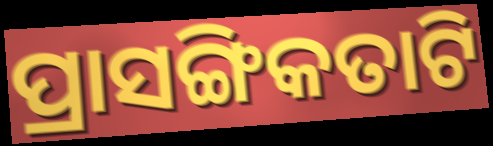
ପ୍ରାସଙ୍ଗିକତାଟି